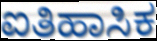
ಐತಿಹಾಸಿಕ